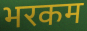
भरकम